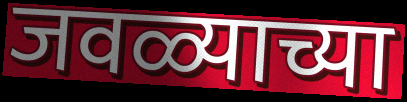
जवळ्याच्या